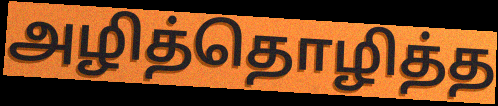
அழித்தொழித்த